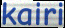
kairi